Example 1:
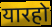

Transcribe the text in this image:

यारहो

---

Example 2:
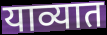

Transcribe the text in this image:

याव्यात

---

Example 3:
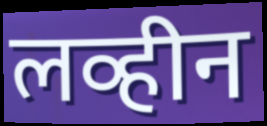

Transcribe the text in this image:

लव्हीन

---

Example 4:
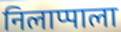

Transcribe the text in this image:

निलाप्पाला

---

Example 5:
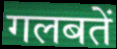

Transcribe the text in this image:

गलबतें